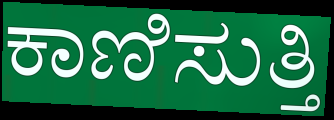
ಕಾಣಿಸುತ್ತಿ